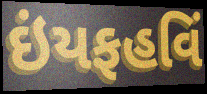
ઇંયફહવિં